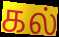
கல்